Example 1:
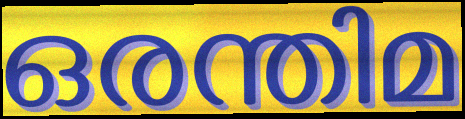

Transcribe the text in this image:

ഒരന്തിമ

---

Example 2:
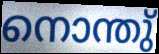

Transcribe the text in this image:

നൊന്തു്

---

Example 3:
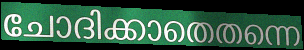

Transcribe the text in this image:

ചോദിക്കാതെതന്നെ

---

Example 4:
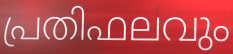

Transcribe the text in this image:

പ്രതിഫലവും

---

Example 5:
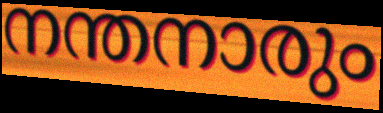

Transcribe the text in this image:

നന്തനാരും